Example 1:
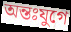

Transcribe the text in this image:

অন্তঃযুগে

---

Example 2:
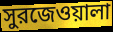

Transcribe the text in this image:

সুরজেওয়ালা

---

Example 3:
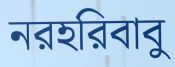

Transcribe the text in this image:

নরহরিবাবু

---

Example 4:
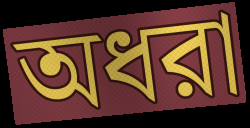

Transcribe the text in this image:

অধরা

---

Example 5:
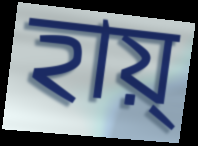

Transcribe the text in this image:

হায়্